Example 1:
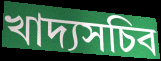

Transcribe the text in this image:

খাদ্যসচিব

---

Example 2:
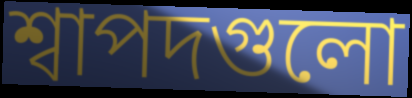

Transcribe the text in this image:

শ্বাপদগুলো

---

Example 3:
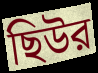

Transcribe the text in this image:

ছিউর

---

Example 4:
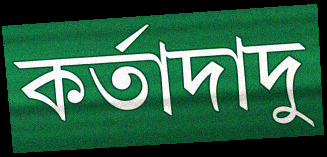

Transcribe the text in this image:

কর্তাদাদু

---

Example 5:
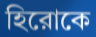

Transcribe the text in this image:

হিরোকে